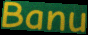
Banu